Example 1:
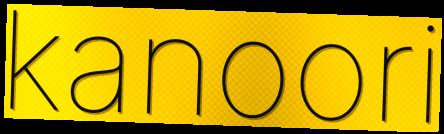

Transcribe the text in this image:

kanoori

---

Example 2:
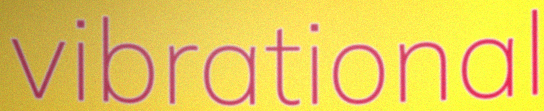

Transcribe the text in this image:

vibrational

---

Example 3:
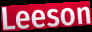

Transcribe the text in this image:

Leeson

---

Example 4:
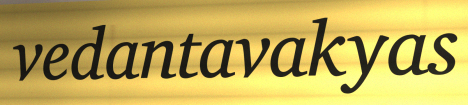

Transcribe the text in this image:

vedantavakyas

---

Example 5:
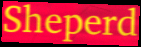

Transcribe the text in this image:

Sheperd